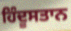
ਹਿੰਦੂਸਤਾਨ